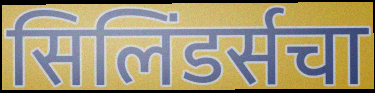
सिलिंडर्सचा